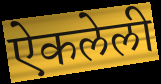
ऐकलेली